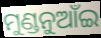
ମୁଣ୍ଡନୁଆଁଇ